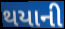
થયાની